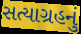
સત્યાગ્રહનું